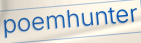
poemhunter